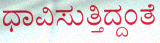
ಧಾವಿಸುತ್ತಿದ್ದಂತೆ